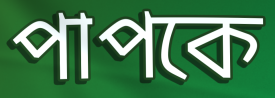
পাপকে